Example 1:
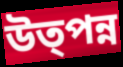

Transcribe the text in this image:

উত্পন্ন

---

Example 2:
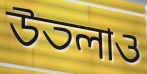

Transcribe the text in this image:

উতলাও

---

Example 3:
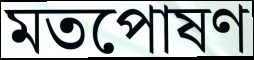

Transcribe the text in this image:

মতপোষণ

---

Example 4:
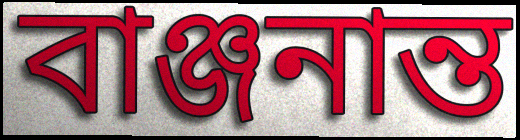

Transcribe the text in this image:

বাঞ্জনান্ত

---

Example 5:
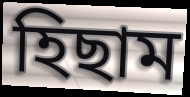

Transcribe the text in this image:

হিছাম